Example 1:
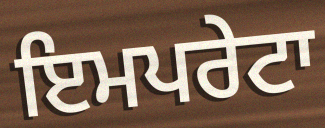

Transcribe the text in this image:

ਇਮਪਰੇਟਾ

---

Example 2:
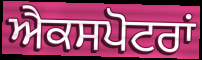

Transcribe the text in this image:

ਐਕਸਪੋਟਰਾਂ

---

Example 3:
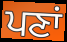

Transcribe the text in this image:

ਪਣਾਂ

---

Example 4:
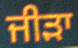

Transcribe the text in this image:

ਜੀੜਾ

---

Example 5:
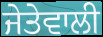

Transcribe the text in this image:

ਜੇਤੇਵਾਲੀ